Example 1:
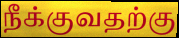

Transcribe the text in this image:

நீக்குவதற்கு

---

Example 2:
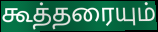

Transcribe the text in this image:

கூத்தரையும்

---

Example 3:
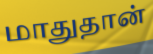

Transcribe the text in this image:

மாதுதான்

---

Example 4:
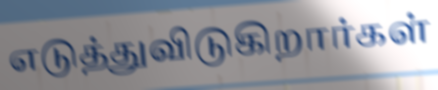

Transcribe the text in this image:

எடுத்துவிடுகிறார்கள்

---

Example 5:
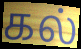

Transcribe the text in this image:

கல்